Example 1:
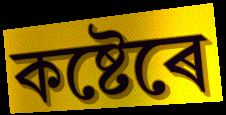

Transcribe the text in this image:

কষ্টেৰে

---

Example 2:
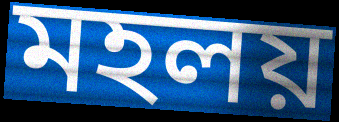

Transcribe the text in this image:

মহলয়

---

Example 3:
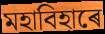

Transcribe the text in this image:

মহাবিহাৰে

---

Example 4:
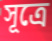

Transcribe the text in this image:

সূত্ৰে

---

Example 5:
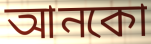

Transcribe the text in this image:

আনকো